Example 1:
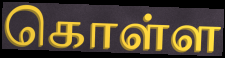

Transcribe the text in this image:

கொள்ள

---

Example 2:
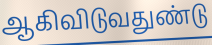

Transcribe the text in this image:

ஆகிவிடுவதுண்டு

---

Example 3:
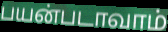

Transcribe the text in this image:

பயன்படாவாம்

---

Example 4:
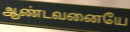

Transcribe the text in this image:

ஆண்டவனையே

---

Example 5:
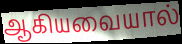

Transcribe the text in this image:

ஆகியவையால்